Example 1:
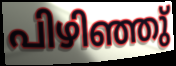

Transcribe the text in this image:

പിഴിഞ്ഞു്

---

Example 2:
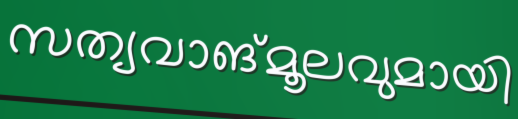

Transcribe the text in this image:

സത്യവാങ്മൂലവുമായി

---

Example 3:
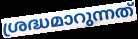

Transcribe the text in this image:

ശ്രദ്ധമാറുന്നത്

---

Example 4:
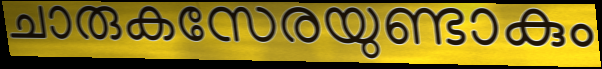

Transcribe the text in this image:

ചാരുകസേരയുണ്ടാകും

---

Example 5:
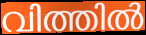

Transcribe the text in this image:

വിത്തിൽ